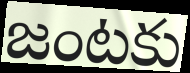
జంటకు